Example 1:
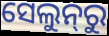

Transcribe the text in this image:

ସେଲୁନ୍‌ରୁ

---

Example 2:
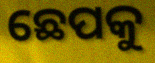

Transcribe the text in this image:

ଛେପକୁ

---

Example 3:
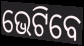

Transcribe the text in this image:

ଭେଟିବେ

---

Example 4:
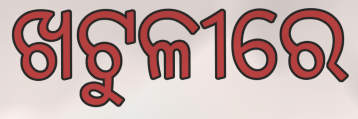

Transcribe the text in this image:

ଖଟୁଳୀରେ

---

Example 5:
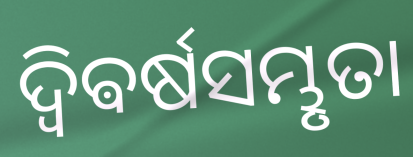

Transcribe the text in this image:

ଦ୍ଵିଵର୍ଷସମ୍ଭୃତା